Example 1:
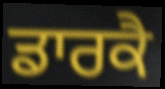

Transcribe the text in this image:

ਡਾਰਕੈ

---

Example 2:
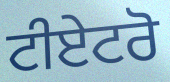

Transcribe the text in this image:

ਟੀਏਟਰੋ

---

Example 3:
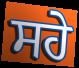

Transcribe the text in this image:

ਸਹੇ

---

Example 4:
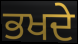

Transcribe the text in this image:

ਭਖਦੇ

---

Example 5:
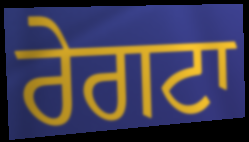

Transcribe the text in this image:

ਰੇਗਟਾ